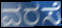
ವರಸೆ